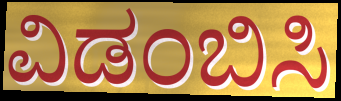
ವಿಡಂಬಿಸಿ